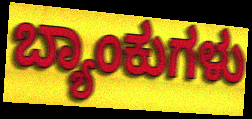
ಬ್ಯಾಂಕುಗಳು